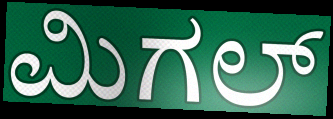
ಮಿಗಲ್